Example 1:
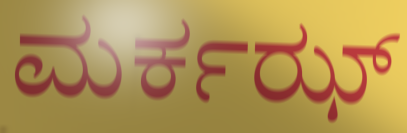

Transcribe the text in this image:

ಮರ್ಕಝ್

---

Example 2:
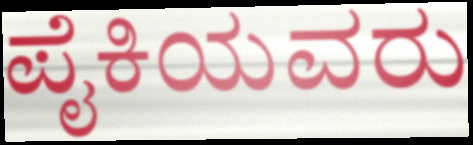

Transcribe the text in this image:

ಪೈಕಿಯವರು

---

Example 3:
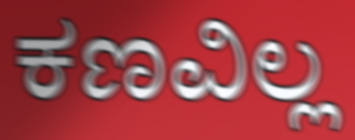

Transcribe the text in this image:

ಕಣವಿಲ್ಲ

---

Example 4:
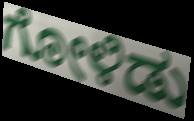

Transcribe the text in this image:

ಗೋಳಿಡು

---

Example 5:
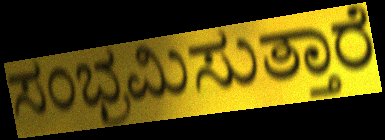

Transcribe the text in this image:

ಸಂಭ್ರಮಿಸುತ್ತಾರೆ